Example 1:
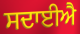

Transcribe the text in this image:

ਸਦਾਈਐ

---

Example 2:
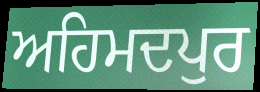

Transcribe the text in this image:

ਅਹਿਮਦਪੁਰ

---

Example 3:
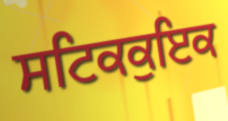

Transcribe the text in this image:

ਸਟਿਕਕੁਇਕ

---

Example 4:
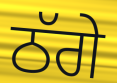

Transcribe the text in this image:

ਠੱਗੇ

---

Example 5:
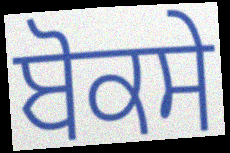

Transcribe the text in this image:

ਬੋਕਸੇ